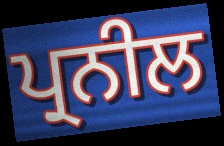
ਪ੍ਰਨੀਲ